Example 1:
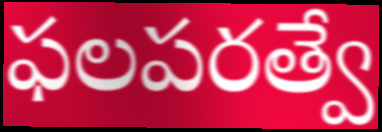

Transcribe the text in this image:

ఫలపరత్వే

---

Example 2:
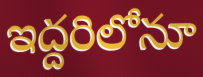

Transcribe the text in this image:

ఇద్దరిలోనూ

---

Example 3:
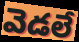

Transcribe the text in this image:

వెడలే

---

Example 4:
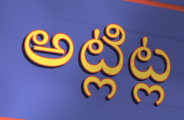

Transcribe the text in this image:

అట్లిట్ల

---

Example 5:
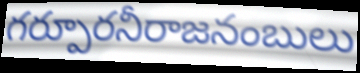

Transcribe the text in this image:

గర్పూరనీరాజనంబులు